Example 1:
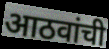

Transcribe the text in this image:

आठवांची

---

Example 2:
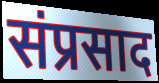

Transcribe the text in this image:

संप्रसाद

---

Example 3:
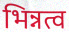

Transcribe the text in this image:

भिन्नत्व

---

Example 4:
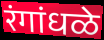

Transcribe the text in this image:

रंगांधळे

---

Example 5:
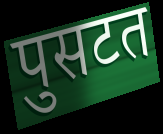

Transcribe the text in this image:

पुसटत